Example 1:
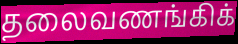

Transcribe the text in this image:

தலைவணங்கிக்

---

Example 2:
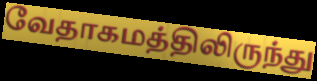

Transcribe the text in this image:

வேதாகமத்திலிருந்து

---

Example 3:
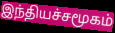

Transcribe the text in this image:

இந்தியச்சமூகம்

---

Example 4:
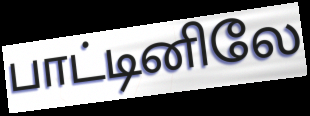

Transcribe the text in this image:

பாட்டினிலே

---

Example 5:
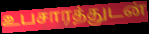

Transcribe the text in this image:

உபசாரத்துடன்